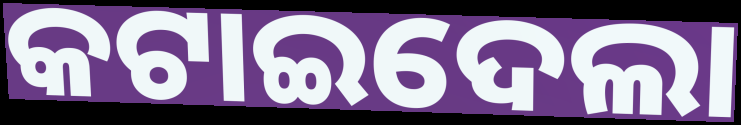
କଟାଇଦେଲା